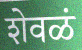
शेवळं